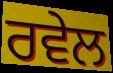
ਰਵੇਲ